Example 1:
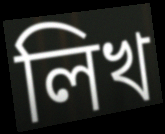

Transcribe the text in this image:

লিখ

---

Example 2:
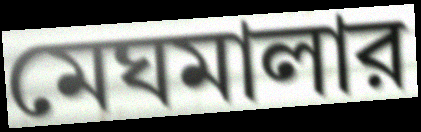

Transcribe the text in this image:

মেঘমালার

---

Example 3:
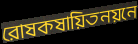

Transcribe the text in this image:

রোষকষায়িতনয়নে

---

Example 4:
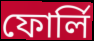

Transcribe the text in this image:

ফোর্লি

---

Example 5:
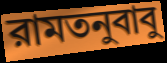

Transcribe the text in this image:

রামতনুবাবু